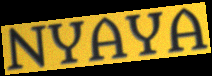
NYAYA